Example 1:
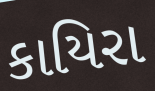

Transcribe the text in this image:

કાયિરા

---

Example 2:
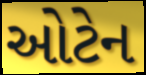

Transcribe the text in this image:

ઓટેન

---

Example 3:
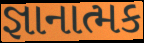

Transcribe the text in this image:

જ્ઞાનાત્મક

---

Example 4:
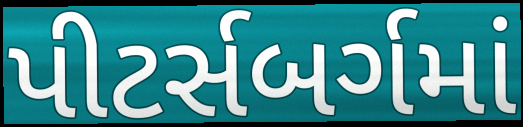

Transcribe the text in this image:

પીટર્સબર્ગમાં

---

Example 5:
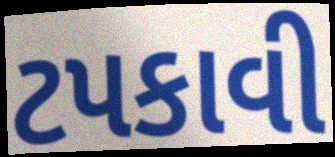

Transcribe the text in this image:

ટપકાવી